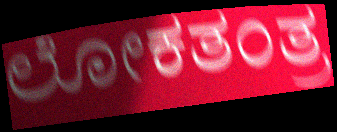
ಲೋಕತಂತ್ರ